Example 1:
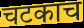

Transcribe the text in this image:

चटकाच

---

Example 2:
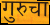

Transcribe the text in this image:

गुरुचा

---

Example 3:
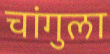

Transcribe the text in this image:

चांगुला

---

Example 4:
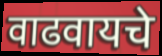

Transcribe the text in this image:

वाढवायचे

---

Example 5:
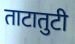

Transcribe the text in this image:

ताटातुटी